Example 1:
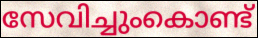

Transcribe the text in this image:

സേവിച്ചുംകൊണ്ട്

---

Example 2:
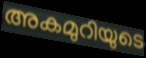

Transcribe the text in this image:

അകമുറിയുടെ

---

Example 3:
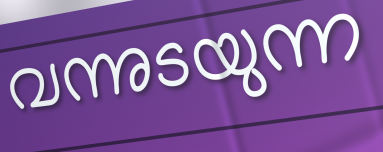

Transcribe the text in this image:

വന്നുടയുന്ന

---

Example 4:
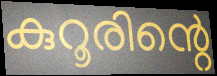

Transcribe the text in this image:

കുറൂരിന്റെ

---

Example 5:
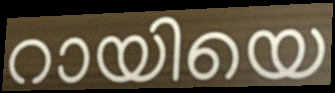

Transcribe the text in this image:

റായിയെ